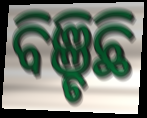
ବିଞ୍ଚିଛି